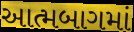
આત્મબાગમાં